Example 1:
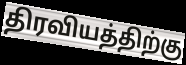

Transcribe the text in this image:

திரவியத்திற்கு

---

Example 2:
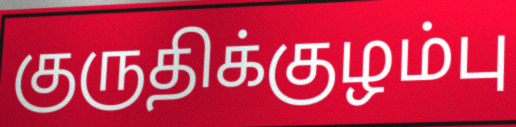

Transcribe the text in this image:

குருதிக்குழம்பு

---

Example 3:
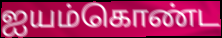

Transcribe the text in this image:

ஐயம்கொண்ட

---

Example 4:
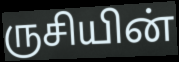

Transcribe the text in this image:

ருசியின்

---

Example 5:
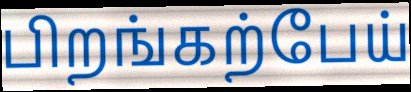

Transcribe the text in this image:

பிறங்கற்பேய்